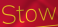
Stow